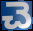
చె